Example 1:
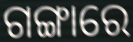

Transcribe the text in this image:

ଗଙ୍ଗାରେ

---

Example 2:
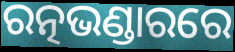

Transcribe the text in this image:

ରତ୍ନଭଣ୍ଡାରରେ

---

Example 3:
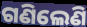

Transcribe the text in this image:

ଗଣିଲେଣି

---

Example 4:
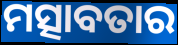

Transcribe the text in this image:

ମତ୍ସାବତାର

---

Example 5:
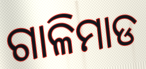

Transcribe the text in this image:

ଗାଳିମାଡ